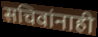
सचिवांनाही